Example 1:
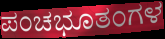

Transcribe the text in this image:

ಪಂಚಭೂತಂಗಳ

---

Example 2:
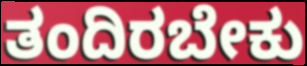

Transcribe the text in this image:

ತಂದಿರಬೇಕು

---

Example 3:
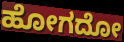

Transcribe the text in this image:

ಹೋಗದೋ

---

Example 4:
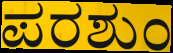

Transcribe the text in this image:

ಪರಶುಂ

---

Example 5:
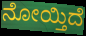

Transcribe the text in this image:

ನೋಯ್ತಿದೆ